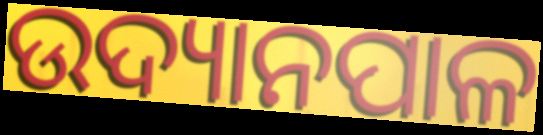
ଉଦ୍ୟାନପାଳ